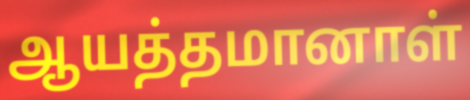
ஆயத்தமானாள்